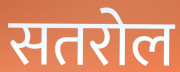
सतरोल